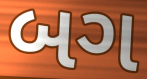
બગ